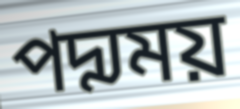
পদ্মময়